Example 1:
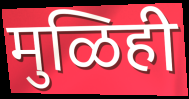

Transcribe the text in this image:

मुळिही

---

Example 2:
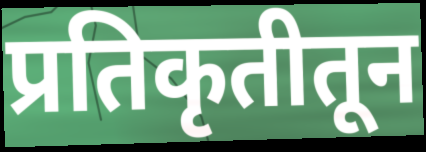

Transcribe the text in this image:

प्रतिकृतीतून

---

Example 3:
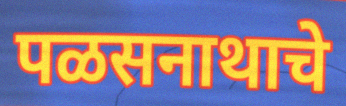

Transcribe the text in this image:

पळसनाथाचे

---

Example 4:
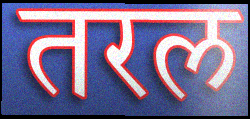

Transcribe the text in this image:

तरल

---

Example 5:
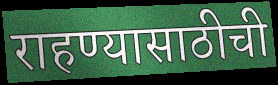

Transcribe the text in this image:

राहण्यासाठीची